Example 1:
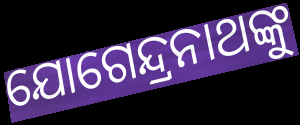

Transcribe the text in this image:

ଯୋଗେନ୍ଦ୍ରନାଥଙ୍କୁ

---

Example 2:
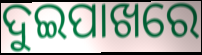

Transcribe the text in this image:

ଦୁଇପାଖରେ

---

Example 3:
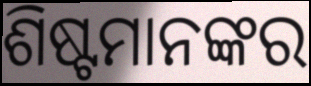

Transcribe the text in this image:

ଶିଷ୍ଟମାନଙ୍କର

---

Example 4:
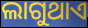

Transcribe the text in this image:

ଲାଗୁଥାଏ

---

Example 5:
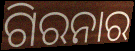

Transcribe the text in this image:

ଗିରନାର